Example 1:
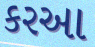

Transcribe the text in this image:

કરઆ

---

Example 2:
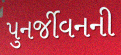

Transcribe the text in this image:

પુનર્જીવનની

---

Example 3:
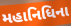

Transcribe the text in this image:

મહાનિધિના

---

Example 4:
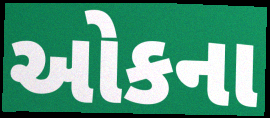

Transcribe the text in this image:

ઓકના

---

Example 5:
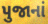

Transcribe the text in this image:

પુજાનાં